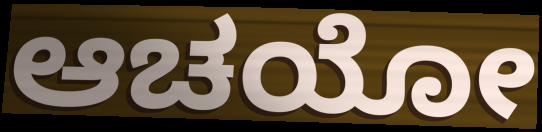
ಆಚಯೋ